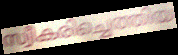
സ്വീകരിച്ചെത്തിയ